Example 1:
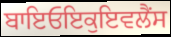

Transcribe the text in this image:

ਬਾਇਓਇਕੁਇਵਲੈਂਸ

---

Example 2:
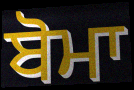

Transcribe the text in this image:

ਬੋਮਾ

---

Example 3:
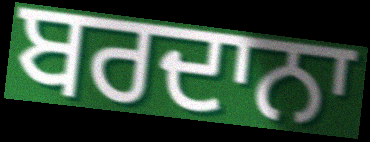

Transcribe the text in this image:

ਬਰਦਾਨਾ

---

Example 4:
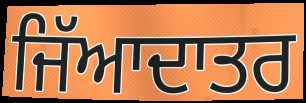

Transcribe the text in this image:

ਜਿੱਆਦਾਤਰ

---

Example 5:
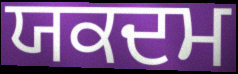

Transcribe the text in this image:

ਯਕਦਮ